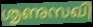
ശൃണുസഖി